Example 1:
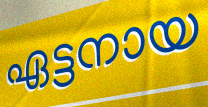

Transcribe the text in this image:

ഏട്ടനായ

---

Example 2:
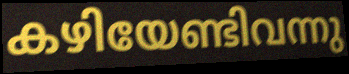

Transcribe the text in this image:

കഴിയേണ്ടിവന്നു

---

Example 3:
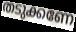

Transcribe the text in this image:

തടുക്കണേ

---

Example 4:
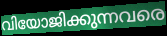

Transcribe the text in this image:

വിയോജിക്കുന്നവരെ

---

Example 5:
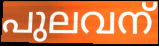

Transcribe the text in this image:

പുലവന്